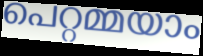
പെറ്റമ്മയാം